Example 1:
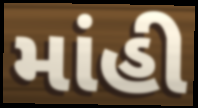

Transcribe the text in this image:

માંહી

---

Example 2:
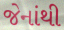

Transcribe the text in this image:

જેનાંથી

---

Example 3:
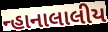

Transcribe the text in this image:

ન્હાનાલાલીય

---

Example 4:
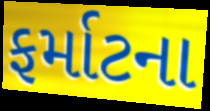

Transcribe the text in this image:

ફર્માટના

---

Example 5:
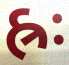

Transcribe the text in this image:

હ્રઃ